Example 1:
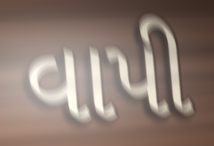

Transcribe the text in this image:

વાપી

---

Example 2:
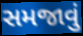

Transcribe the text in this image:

સમજાવું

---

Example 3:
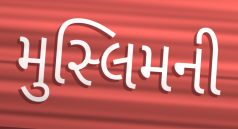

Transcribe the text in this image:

મુસ્લિમની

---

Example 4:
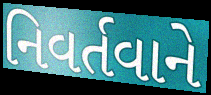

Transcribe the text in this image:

નિવર્તવાને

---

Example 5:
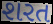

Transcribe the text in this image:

શરત